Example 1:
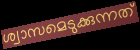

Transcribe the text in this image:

ശ്വാസമെടുക്കുന്നത്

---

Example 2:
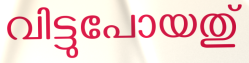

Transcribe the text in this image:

വിട്ടുപോയതു്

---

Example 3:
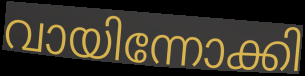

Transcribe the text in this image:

വായിന്നോക്കി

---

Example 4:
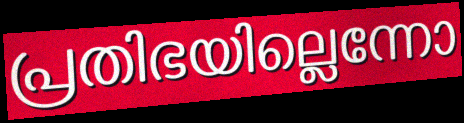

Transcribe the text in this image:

പ്രതിഭയില്ലെന്നോ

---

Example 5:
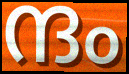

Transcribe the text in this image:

ന്ദം